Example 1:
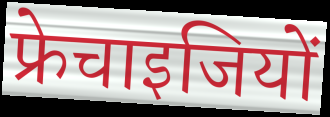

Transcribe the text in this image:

फ्रेचाइजियों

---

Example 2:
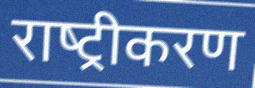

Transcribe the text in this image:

राष्ट्रीकरण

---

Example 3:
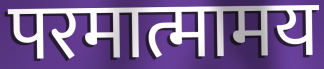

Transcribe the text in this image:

परमात्मामय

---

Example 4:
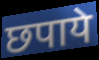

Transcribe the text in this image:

छपाये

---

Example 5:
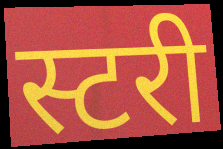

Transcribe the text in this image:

स्टरी